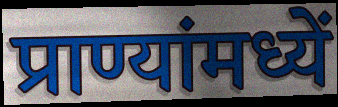
प्राण्यांमध्यें